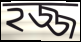
হজ্জ